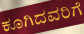
ಕೂಗಿದವರಿಗೆ